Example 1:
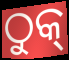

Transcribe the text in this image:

ଠୁକ୍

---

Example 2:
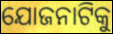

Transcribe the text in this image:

ଯୋଜନାଟିକୁ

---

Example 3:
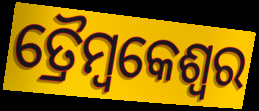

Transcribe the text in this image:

ତ୍ରୈମ୍ବକେଶ୍ୱର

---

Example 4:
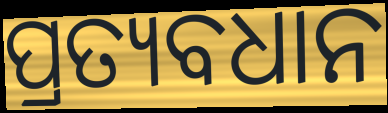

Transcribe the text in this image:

ପ୍ରତ୍ୟବଧାନ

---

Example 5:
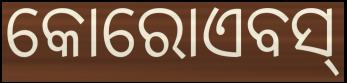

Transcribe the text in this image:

କୋରୋଏବସ୍